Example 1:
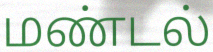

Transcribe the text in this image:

மண்டல்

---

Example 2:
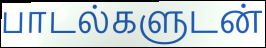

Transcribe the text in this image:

பாடல்களுடன்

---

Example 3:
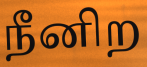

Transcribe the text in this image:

நீனிற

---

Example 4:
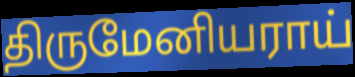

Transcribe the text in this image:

திருமேனியராய்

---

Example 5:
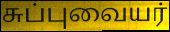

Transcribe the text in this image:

சுப்புவையர்